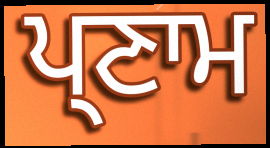
ਪ੍ਣਾਮ